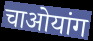
चाओयांग